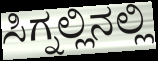
ಸಿಗ್ನಲ್ಲಿನಲ್ಲಿ